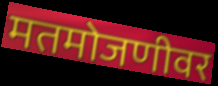
मतमोजणीवर